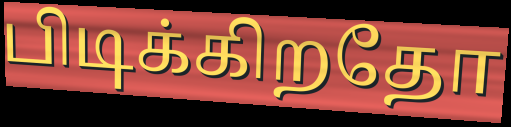
பிடிக்கிறதோ